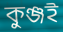
কুঞ্জই